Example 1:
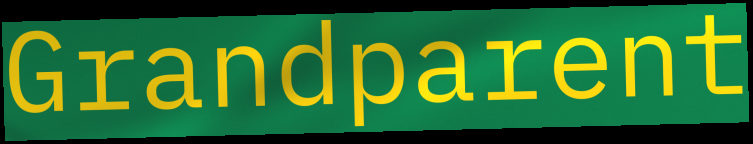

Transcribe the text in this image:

Grandparent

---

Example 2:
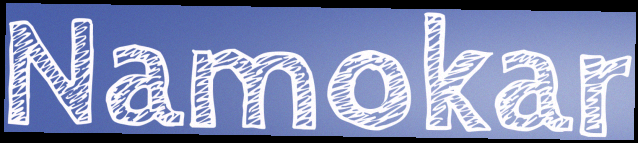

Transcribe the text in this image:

Namokar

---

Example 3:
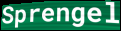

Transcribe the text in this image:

Sprengel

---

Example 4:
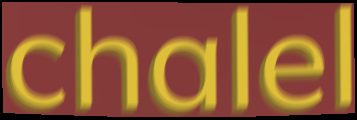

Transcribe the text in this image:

chalel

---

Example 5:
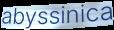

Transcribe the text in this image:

abyssinica